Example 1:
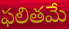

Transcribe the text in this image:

ఫలితమే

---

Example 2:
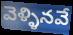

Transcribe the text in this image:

వెళ్ళినవే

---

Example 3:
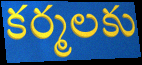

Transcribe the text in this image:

కర్మలకు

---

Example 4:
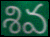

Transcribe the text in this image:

శివ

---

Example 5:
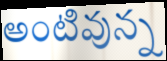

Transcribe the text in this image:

అంటివున్న